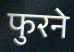
फुरने